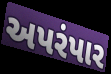
અપરંપાર